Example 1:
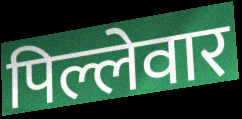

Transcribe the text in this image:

पिल्लेवार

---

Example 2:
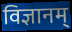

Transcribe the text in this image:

विज्ञानम्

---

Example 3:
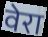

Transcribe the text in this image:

वेरा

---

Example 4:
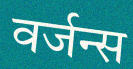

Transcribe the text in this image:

वर्जन्स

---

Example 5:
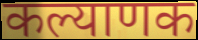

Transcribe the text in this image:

कल्याणक